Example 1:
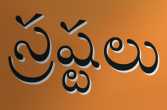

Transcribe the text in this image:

స్రష్టలు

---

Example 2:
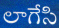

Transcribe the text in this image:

లాగేసి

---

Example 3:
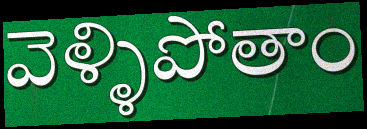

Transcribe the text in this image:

వెళ్ళిపోతాం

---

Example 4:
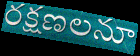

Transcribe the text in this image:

రక్షణలనూ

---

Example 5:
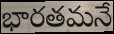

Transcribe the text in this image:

భారతమనే